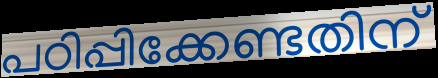
പഠിപ്പിക്കേണ്ടതിന്